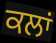
ਕਲਾਂ